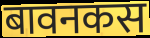
बावनकस